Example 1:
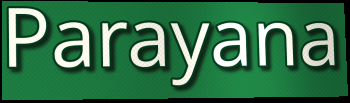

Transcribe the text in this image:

Parayana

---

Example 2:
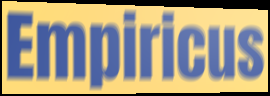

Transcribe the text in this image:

Empiricus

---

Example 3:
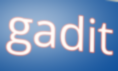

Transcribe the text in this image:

gadit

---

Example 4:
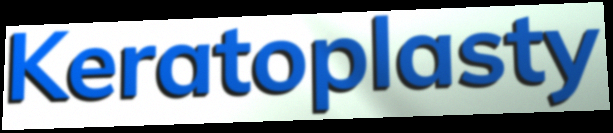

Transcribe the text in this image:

Keratoplasty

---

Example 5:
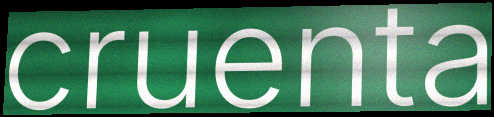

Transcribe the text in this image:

cruenta